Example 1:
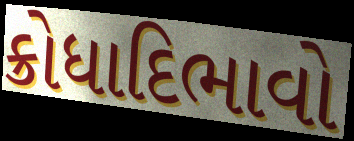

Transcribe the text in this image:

ક્રોધાદિભાવો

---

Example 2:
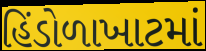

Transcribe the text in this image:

હિંડોળાખાટમાં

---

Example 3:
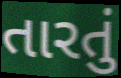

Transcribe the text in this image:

તારતું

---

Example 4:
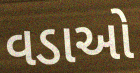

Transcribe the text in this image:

વડાઓ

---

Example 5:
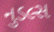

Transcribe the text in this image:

નુડલ્સ